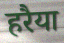
हरैया